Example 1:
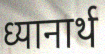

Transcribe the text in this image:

ध्यानार्थ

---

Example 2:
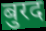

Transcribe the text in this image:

बुरद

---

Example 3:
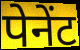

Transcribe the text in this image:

पेनेंट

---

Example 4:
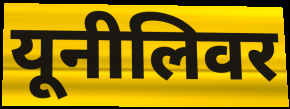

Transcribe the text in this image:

यूनीलिवर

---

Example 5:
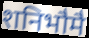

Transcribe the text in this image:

शनिभौमै